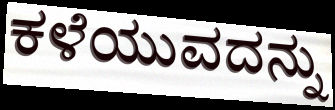
ಕಳೆಯುವದನ್ನು